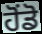
ਹੋਂਡੋ